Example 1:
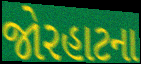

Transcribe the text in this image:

જોરહાટના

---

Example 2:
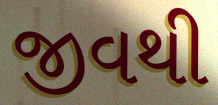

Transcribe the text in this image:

જીવથી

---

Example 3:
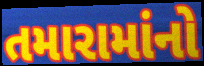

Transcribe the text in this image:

તમારામાંનો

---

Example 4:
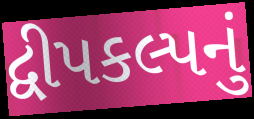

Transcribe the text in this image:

દ્વીપકલ્પનું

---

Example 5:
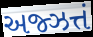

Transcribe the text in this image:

અજ્ઝત્તં